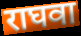
राघवा